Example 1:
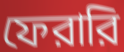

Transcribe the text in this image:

ফেরারি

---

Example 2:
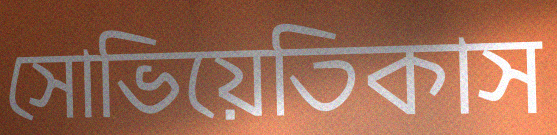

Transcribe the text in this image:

সোভিয়েতিকাস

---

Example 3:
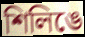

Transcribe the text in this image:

শিলিঙে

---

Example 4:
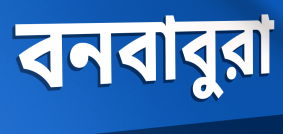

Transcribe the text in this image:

বনবাবুরা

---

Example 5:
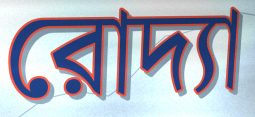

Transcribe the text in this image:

রোদ্যা